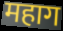
महाग